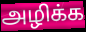
அழிக்க